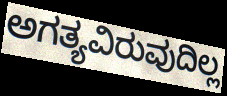
ಅಗತ್ಯವಿರುವುದಿಲ್ಲ